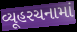
વ્યૂહરચનામાં